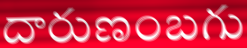
దారుణంబగు